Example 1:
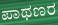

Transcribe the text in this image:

ಪಾಥಣರ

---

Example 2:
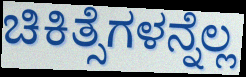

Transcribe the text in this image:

ಚಿಕಿತ್ಸೆಗಳನ್ನೆಲ್ಲ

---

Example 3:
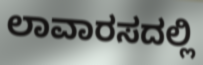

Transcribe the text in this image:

ಲಾವಾರಸದಲ್ಲಿ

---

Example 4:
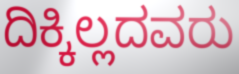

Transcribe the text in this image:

ದಿಕ್ಕಿಲ್ಲದವರು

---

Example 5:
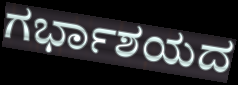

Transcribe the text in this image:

ಗರ್ಭಾಶಯದ